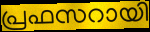
പ്രഫസറായി